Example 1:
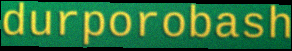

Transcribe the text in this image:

durporobash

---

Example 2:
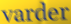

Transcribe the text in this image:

varder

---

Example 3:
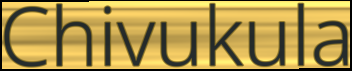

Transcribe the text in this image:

Chivukula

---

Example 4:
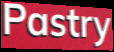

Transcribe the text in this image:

Pastry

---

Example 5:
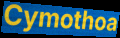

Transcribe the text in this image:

Cymothoa